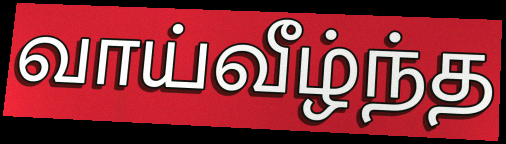
வாய்வீழ்ந்த